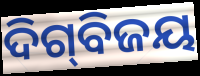
ଦିଗ୍‌ବିଜୟ